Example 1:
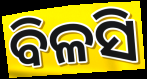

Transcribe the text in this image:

ବିଳସି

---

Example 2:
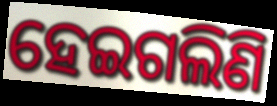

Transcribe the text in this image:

ହେଇଗଲିଣି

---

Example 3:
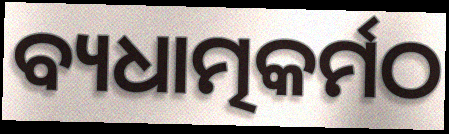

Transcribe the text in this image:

ବ୍ୟଧାତ୍ମକର୍ମଠ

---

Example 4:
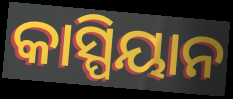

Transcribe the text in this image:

କାସ୍ପିୟାନ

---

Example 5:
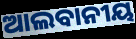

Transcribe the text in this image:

ଆଲବାନୀୟ